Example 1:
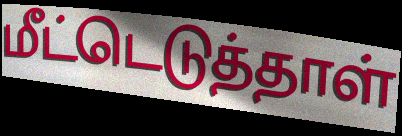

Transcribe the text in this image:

மீட்டெடுத்தாள்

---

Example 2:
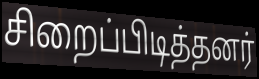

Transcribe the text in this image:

சிறைப்பிடித்தனர்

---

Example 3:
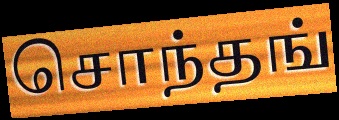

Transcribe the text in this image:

சொந்தங்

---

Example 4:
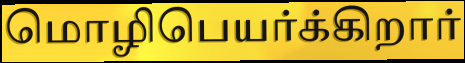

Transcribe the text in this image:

மொழிபெயர்க்கிறார்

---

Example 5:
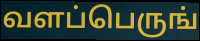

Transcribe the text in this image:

வளப்பெருங்